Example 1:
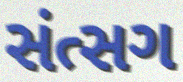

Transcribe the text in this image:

સંત્સગ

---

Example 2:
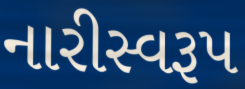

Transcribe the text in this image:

નારીસ્વરૂપ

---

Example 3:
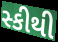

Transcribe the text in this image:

સ્કીથી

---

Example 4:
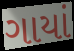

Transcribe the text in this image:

ગાયાં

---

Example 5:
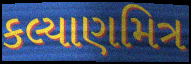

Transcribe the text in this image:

કલ્યાણમિત્ર